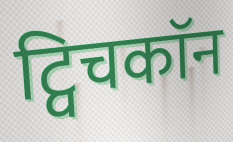
ट्विचकॉन